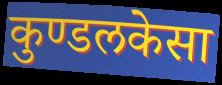
कुण्डलकेसा